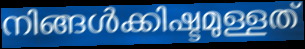
നിങ്ങൾക്കിഷ്ടമുള്ളത്